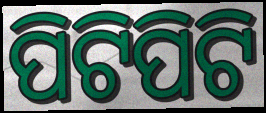
ପିଟିପିଟି